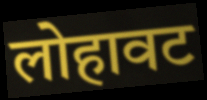
लोहावट